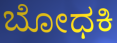
ಬೋಧಕಿ